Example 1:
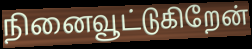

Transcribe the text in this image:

நினைவூட்டுகிறேன்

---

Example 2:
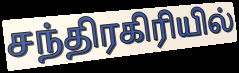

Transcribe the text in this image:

சந்திரகிரியில்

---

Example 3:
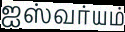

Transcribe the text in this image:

ஐஸ்வர்யம்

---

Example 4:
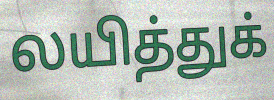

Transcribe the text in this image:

லயித்துக்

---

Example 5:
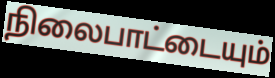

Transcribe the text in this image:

நிலைபாட்டையும்